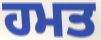
ਹਮਤ